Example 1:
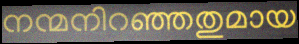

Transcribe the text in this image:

നന്മനിറഞ്ഞതുമായ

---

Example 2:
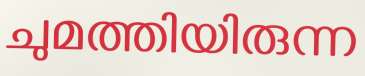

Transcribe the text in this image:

ചുമത്തിയിരുന്ന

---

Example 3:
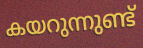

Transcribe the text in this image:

കയറുന്നുണ്ട്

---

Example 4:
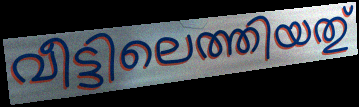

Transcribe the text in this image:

വീട്ടിലെത്തിയതു്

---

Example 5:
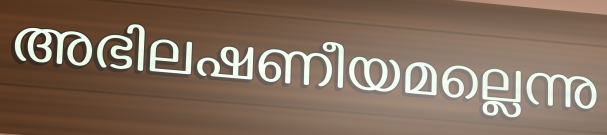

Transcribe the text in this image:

അഭിലഷണീയമല്ലെന്നു